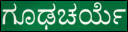
ಗೂಢಚರ್ಯೆ